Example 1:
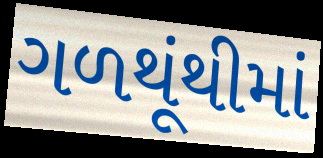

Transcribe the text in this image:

ગળથૂંથીમાં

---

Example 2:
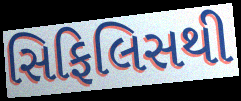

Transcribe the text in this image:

સિફિલિસથી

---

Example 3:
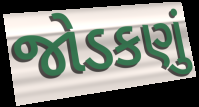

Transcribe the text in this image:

જોડકણું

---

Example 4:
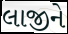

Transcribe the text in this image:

લાજીને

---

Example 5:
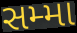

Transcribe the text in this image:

સમ્મા